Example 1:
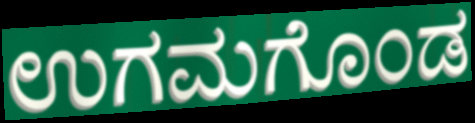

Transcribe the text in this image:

ಉಗಮಗೊಂಡ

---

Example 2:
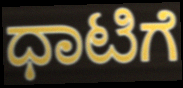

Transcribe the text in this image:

ಧಾಟಿಗೆ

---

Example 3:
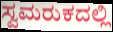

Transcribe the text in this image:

ಸ್ವಮರುಕದಲ್ಲಿ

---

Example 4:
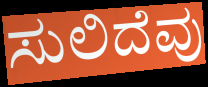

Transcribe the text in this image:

ಸುಲಿದೆವು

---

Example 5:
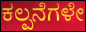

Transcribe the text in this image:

ಕಲ್ಪನೆಗಳೇ